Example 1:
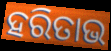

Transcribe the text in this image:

ହରିତାଭ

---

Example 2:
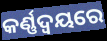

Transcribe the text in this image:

କର୍ଣ୍ଣଦ୍ୱୟରେ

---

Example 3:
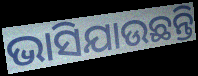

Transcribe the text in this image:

ଭାସିଯାଉଛନ୍ତି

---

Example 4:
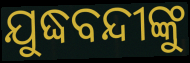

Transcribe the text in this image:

ଯୁଦ୍ଧବନ୍ଦୀଙ୍କୁ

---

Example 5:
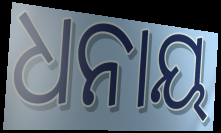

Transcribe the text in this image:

ଧନାୟ